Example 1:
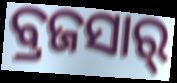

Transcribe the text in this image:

ବ୍ରଜସାର୍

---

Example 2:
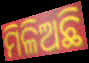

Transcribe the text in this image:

ମିଳିଅଛି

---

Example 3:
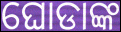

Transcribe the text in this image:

ଘୋଡାଙ୍କ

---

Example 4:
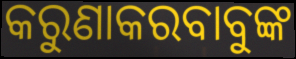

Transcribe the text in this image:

କରୁଣାକରବାବୁଙ୍କ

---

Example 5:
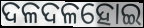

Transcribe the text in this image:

ଦଳଦଳହୋଇ